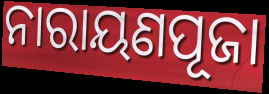
ନାରାୟଣପୂଜା